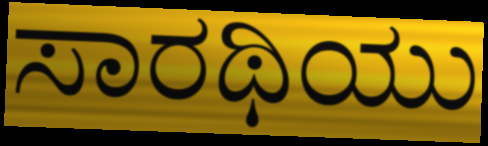
ಸಾರಥಿಯು